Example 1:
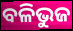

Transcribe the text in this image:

ବଳିଭୁଜ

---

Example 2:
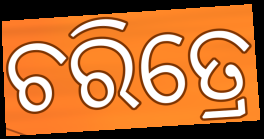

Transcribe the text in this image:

ଚରିତ୍ରେ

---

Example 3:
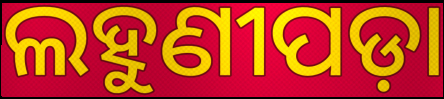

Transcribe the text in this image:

ଲହୁଣୀପଡ଼ା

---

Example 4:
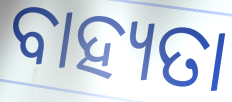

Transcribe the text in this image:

ବାହ୍ୟତା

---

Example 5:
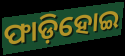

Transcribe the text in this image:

ଫାଡ଼ିହୋଇ